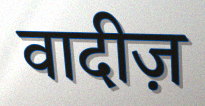
वादीज़